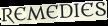
REMEDIES